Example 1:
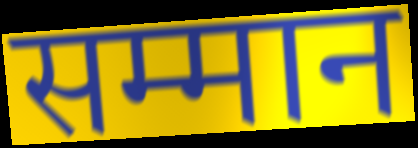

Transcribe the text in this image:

सम्मान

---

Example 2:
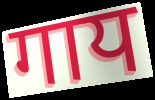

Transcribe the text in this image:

गाय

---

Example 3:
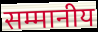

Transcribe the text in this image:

सम्मानीय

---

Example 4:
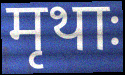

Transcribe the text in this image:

मृथाः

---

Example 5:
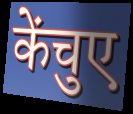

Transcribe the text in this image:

केंचुए